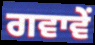
ਗਵਾਵੇਂ